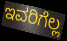
ಇವರಿಗೆಲ್ಲ